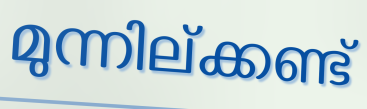
മുന്നില്ക്കണ്ട്